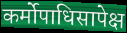
कर्मोपाधिसापेक्ष